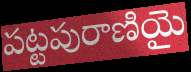
పట్టపురాణియై